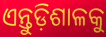
ଏନ୍ତୁଡ଼ିଶାଳକୁ